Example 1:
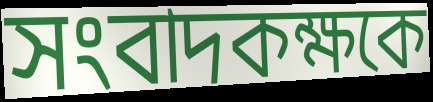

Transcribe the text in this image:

সংবাদকক্ষকে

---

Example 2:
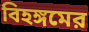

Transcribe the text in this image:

বিহঙ্গমের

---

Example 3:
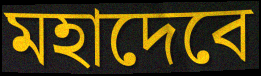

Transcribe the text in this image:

মহাদেবে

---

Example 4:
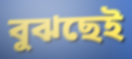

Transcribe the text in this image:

বুঝছেই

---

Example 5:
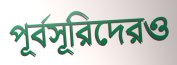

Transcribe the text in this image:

পূর্বসূরিদেরও